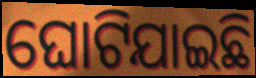
ଘୋଟିଯାଇଛି